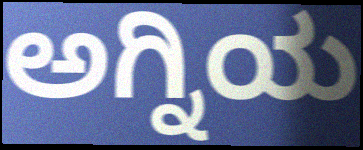
ಅಗ್ನಿಯ